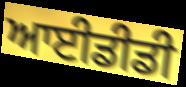
ਆਈਡੀਡੀ